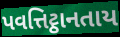
પવત્તિટ્ઠાનતાય